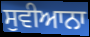
ਸੁਵੀਆਨਾ